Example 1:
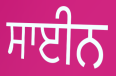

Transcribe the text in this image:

ਸਾਈਨ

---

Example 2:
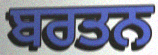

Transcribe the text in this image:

ਬਰਤਨ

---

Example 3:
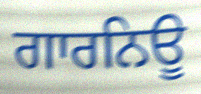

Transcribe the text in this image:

ਗਾਰਨਿਊ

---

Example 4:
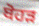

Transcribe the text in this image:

ਬੋਹੜ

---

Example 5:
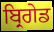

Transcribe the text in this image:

ਬ੍ਰਿਗੇਡ